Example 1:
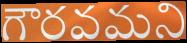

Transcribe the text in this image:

గౌరవమని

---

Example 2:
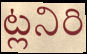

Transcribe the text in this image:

ట్లనిరి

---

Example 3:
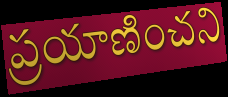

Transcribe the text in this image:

ప్రయాణించని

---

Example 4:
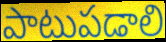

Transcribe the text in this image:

పాటుపడాలి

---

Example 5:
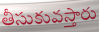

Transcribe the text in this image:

తీసుకువస్తారు